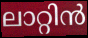
ലാറ്റിൻ